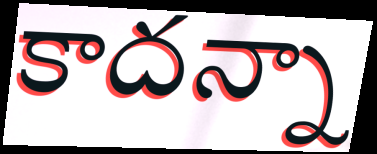
కాదన్నా